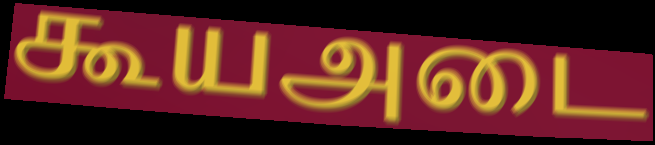
கூயஅடை